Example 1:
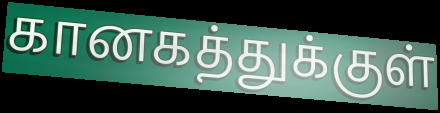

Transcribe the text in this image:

கானகத்துக்குள்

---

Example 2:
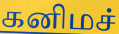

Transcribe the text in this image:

கனிமச்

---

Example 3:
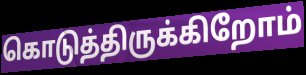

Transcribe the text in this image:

கொடுத்திருக்கிறோம்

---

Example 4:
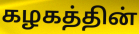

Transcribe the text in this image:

கழகத்தின்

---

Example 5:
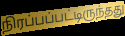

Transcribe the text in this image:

நிரப்பப்பட்டிருந்தது